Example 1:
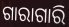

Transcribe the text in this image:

ଗାରାଗାରି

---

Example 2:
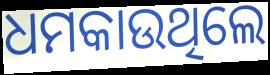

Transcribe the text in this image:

ଧମକାଉଥିଲେ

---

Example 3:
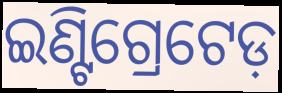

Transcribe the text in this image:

ଇଣ୍ଟିଗ୍ରେଟେଡ଼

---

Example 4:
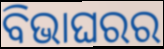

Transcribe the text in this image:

ବିଭାଘରର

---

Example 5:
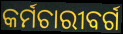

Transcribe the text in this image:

କର୍ମଚାରୀବର୍ଗ